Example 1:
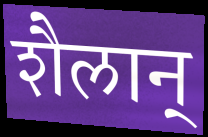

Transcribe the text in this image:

शैलान्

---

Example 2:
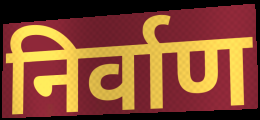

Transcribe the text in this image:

निर्वाण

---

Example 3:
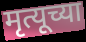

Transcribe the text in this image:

मृत्यूच्या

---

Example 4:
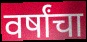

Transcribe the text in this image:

वर्षांचा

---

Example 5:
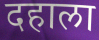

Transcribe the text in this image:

दहाला